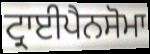
ਟ੍ਰਾਈਪੈਨਸੋਮਾ